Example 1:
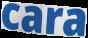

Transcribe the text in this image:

cara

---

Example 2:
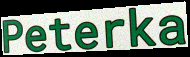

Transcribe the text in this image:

Peterka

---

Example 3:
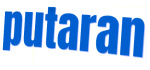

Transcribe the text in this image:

putaran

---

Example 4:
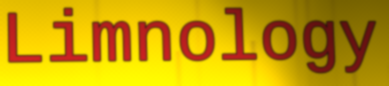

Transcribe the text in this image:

Limnology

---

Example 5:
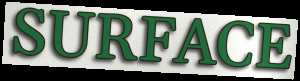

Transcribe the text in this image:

SURFACE